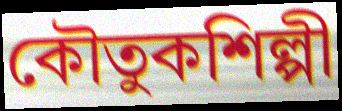
কৌতুকশিল্পী